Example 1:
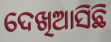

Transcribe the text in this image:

ଦେଖିଆସିଛି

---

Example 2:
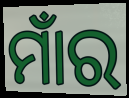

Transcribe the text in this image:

ମାଁର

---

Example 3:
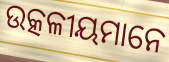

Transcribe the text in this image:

ଉତ୍କଳୀୟମାନେ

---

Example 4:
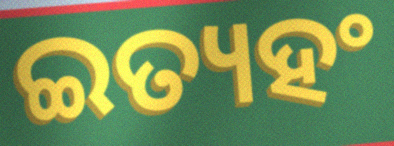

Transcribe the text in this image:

ଇତ୍ୟହଂ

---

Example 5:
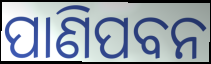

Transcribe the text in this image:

ପାଣିପବନ